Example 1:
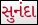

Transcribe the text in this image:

સુનંદા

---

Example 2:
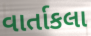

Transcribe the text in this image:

વાર્તાકલા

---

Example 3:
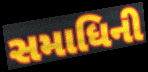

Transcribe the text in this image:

સમાધિની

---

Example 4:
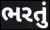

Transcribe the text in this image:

ભરતું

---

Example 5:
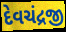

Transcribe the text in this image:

દેવચંદ્રજી